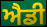
ਐਡੀ